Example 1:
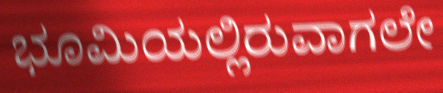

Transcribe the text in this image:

ಭೂಮಿಯಲ್ಲಿರುವಾಗಲೇ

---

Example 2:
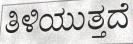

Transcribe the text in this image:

ತಿಳಿಯುತ್ತದೆ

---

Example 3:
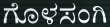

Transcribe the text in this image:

ಗೊಳಸಂಗಿ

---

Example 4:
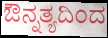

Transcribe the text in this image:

ಔನ್ನತ್ಯದಿಂದ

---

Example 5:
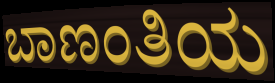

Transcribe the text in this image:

ಬಾಣಂತಿಯ